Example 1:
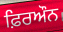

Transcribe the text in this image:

ਫ਼ਿਰਔਨ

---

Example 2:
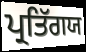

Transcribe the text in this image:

ਪ੍ਰਤਿੱਗਯ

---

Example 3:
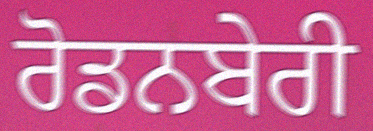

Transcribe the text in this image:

ਰੋਡਨਬੇਰੀ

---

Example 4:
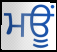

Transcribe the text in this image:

ਮਊਂ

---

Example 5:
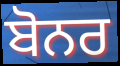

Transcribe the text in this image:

ਬੋਨਰ